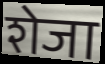
शेजा